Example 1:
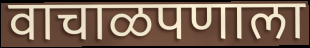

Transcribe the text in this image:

वाचाळपणाला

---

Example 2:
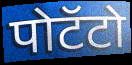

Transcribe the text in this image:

पोटॅटो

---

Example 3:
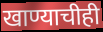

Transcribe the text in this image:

खाण्याचीही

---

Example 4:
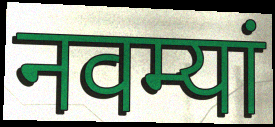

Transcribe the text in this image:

नवम्यां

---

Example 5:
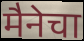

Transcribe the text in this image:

मैनेचा